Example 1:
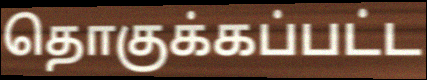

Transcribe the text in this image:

தொகுக்கப்பட்ட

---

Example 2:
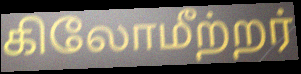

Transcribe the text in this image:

கிலோமீற்றர்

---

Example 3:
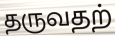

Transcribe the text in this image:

தருவதற்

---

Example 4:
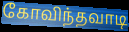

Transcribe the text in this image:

கோவிந்தவாடி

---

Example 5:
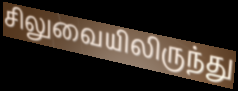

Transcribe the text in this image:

சிலுவையிலிருந்து